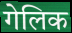
गेलिक